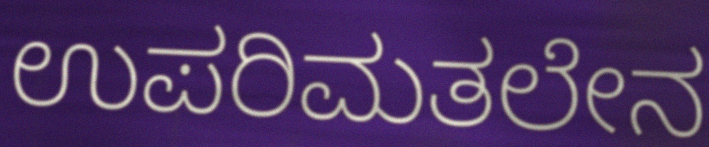
ಉಪರಿಮತಲೇನ